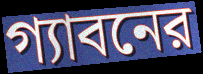
গ্যাবনের